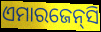
ଏମାରଜେନ୍‌ସି